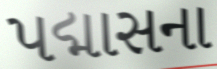
પદ્માસના